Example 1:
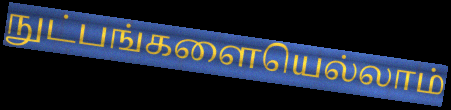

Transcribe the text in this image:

நுட்பங்களையெல்லாம்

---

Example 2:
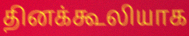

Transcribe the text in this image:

தினக்கூலியாக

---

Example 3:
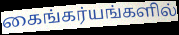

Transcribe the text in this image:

கைங்கர்யங்களில்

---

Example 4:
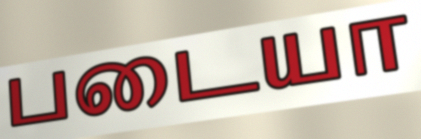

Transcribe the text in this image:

படையா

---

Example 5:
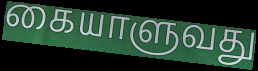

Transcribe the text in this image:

கையாளுவது